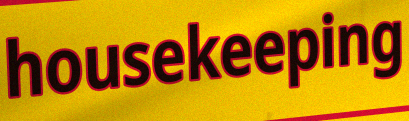
housekeeping